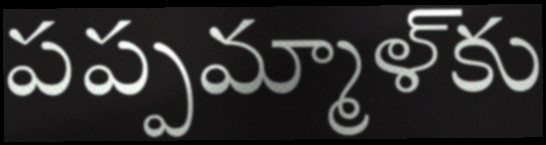
పప్పమ్మాళ్‌కు